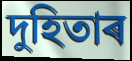
দুহিতাৰ